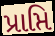
પ્રાપ્તિ